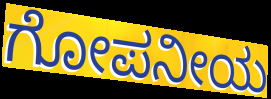
ಗೋಪನೀಯ